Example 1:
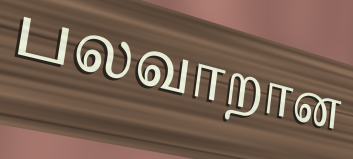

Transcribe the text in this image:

பலவாறான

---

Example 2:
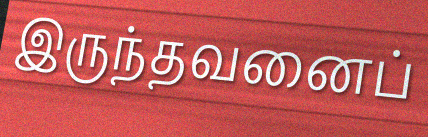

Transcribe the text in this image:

இருந்தவனைப்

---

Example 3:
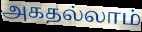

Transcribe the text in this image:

அகதல்லாம்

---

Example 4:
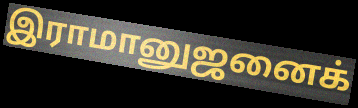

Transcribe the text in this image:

இராமானுஜனைக்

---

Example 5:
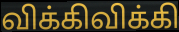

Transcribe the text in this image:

விக்கிவிக்கி